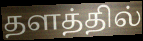
தளத்தில்